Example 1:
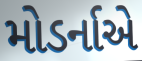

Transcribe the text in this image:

મોડર્નાએ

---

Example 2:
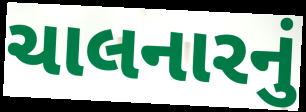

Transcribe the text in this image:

ચાલનારનું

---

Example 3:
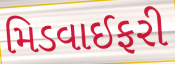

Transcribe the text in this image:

મિડવાઈફરી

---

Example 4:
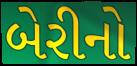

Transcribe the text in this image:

બેરીનો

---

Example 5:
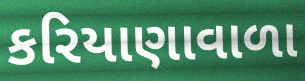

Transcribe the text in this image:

કરિયાણાવાળા